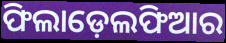
ଫିଲାଡ଼େଲଫିଆର